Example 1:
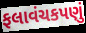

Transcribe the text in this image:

ફલાવંચકપણું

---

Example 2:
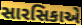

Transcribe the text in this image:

સારસિકાએ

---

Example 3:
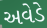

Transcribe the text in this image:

અવેડે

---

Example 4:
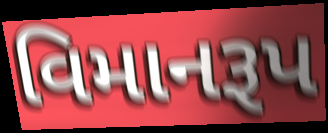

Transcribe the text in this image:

વિમાનરૂપ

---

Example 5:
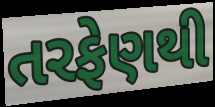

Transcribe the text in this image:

તરફેણથી